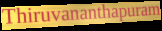
Thiruvananthapuram